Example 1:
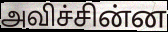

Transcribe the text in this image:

அவிச்சின்ன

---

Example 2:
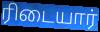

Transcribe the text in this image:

ரிடையார்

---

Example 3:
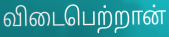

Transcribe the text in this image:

விடைபெற்றான்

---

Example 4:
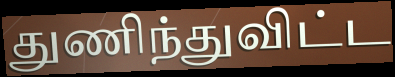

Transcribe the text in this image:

துணிந்துவிட்ட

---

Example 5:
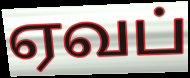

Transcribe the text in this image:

ஏவப்